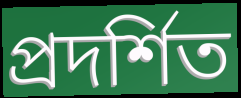
প্ৰদৰ্শিত